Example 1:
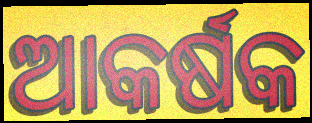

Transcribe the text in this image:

ଆକର୍ଷକ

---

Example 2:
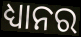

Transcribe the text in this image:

ଧ୍ୟାନର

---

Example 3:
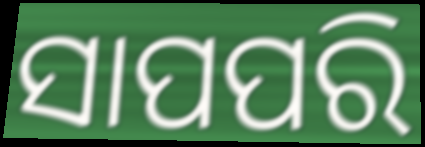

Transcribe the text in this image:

ସାପପରି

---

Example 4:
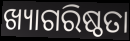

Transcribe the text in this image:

ଖ୍ୟାଗରିଷ୍ଠତା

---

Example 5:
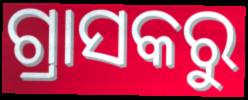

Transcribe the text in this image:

ଗ୍ରାସକରୁ